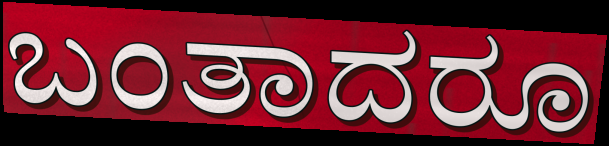
ಬಂತಾದರೂ